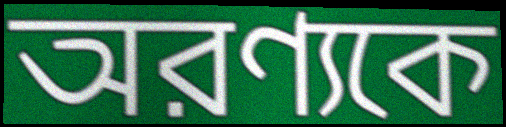
অরণ্যকে